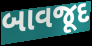
બાવજૂદ